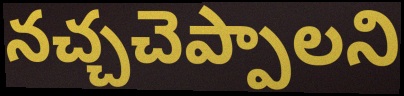
నచ్చచెప్పాలని